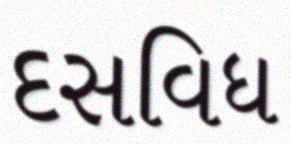
દસવિધ